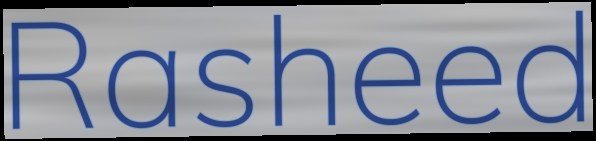
Rasheed